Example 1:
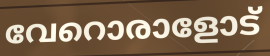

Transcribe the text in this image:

വേറൊരാളോട്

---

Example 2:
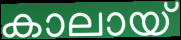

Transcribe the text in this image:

കാലായ്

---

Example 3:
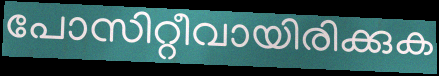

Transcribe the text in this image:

പോസിറ്റീവായിരിക്കുക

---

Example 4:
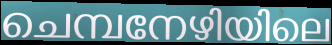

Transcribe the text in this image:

ചെമ്പനേഴിയിലെ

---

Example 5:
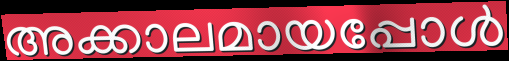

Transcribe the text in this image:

അക്കാലമായപ്പോൾ